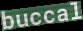
buccal